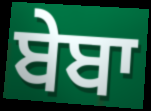
ਬੇਬਾ